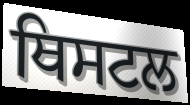
ਥਿਸਟਲ